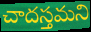
చాదస్తమని